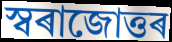
স্বৰাজোত্তৰ